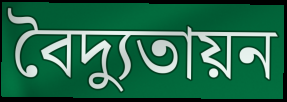
বৈদ্যুতায়ন